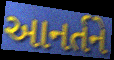
આનર્તને